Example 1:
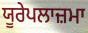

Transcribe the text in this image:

ਯੂਰੇਪਲਾਜ਼ਮਾ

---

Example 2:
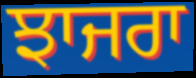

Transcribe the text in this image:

ਝਾਜਰਾ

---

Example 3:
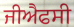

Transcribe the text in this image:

ਜੀਐਫਸੀ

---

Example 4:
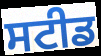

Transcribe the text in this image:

ਸਟੀਡ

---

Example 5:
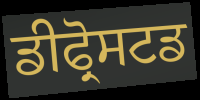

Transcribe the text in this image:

ਡੀਫ੍ਰੋਸਟਡ